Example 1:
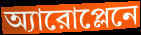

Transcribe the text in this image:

অ্যারোপ্লেনে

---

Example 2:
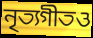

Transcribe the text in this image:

নৃত্যগীতও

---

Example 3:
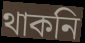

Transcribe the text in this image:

থাকনি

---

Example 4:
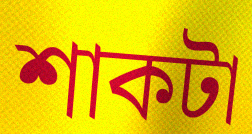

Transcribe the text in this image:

শাকটা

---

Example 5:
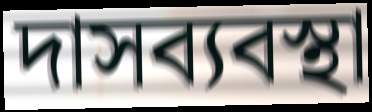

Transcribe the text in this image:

দাসব্যবস্থা